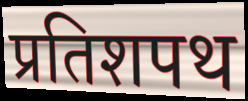
प्रतिशपथ